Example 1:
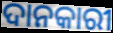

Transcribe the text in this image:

ଦାନକାରୀ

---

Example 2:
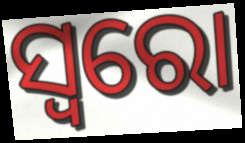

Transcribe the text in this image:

ସ୍ୱରୋ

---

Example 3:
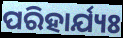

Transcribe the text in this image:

ପରିହାର୍ଯ୍ୟଃ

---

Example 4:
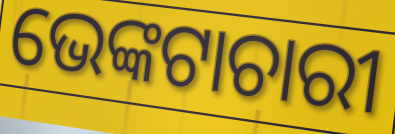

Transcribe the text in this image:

ଭେଙ୍କଟାଚାରୀ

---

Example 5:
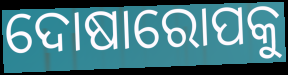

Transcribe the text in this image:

ଦୋଷାରୋପକୁ